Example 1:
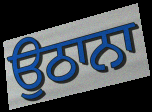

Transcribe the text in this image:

ਉਠਾਨਾ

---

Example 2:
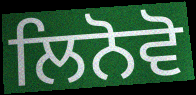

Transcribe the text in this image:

ਲਿਨੋਵੋ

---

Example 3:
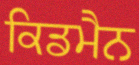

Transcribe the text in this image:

ਕਿਡਮੈਨ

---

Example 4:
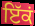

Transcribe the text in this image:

ਇੱਕਂ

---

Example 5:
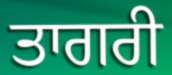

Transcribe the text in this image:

ਤਾਗਰੀ